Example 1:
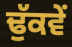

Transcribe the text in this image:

ਢੁੱਕਵੇਂ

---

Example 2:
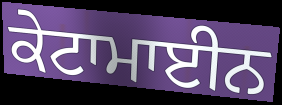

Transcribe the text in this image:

ਕੇਟਾਮਾਈਨ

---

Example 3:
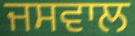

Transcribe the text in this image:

ਜਸਵਾਲ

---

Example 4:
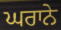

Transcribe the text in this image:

ਘਰਾਨੇ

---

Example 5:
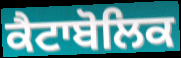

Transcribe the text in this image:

ਕੈਟਾਬੋਲਿਕ